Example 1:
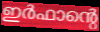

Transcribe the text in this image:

ഇർഫാന്റെ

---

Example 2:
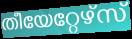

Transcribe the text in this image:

തീയേറ്റേഴ്സ്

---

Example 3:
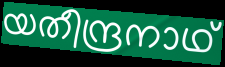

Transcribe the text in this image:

യതീന്ദ്രനാഥ്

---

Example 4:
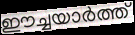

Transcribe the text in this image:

ഈച്ചയാർത്ത്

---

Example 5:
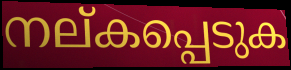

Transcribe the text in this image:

നല്കപ്പെടുക